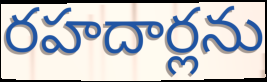
రహదార్లను